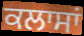
ਕਲਾਸਾਂ